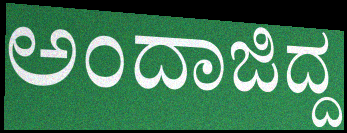
ಅಂದಾಜಿದ್ದ